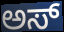
ಅಸ್